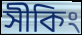
সীকিং